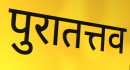
पुरातत्तव